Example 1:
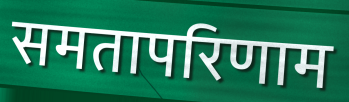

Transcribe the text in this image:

समतापरिणाम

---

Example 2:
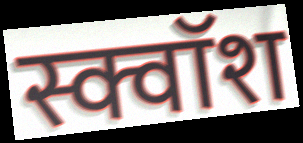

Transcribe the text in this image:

स्क्वॉश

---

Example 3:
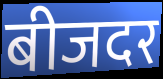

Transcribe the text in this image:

बीजदर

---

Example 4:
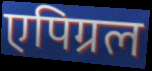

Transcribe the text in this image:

एपिग्रल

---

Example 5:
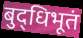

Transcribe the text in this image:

बुद्धिभूतं